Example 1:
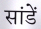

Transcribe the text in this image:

सांडें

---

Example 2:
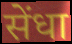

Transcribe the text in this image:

सेंधा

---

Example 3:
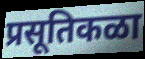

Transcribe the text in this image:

प्रसूतिकळा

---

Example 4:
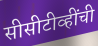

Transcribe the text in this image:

सीसीटीव्हींची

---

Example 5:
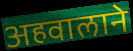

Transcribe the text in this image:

अहवालाने